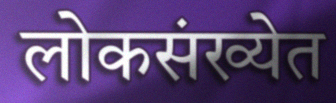
लोकसंख्येत